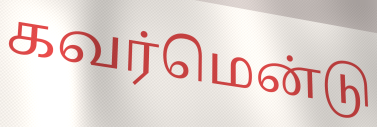
கவர்மென்டு